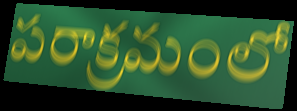
పరాక్రమంలో